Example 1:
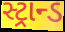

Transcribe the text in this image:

સ્ટ્રાન્ડ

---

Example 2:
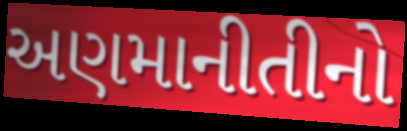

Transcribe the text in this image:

અણમાનીતીનો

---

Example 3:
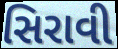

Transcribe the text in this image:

સિરાવી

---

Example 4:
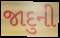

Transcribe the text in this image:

જાદુની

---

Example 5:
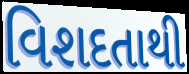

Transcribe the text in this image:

વિશદતાથી